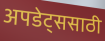
अपडेट्ससाठी